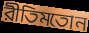
রীতিমতোন